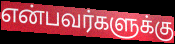
என்பவர்களுக்கு